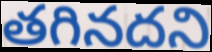
తగినదని